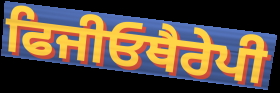
ਫਿਜੀਓਥੈਰੇਪੀ